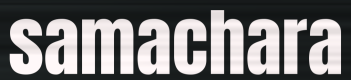
samachara